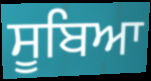
ਸੂਬਿਆ